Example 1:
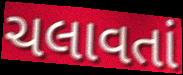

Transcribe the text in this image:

ચલાવતાં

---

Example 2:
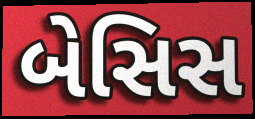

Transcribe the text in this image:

બેસિસ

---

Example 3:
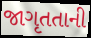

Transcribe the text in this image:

જાગૃતતાની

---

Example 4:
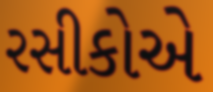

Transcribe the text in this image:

રસીકોએ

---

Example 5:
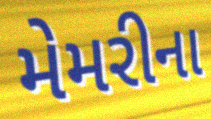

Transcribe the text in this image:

મેમરીના